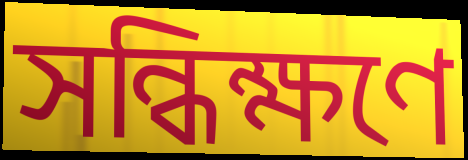
সন্ধিক্ষণে